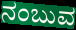
ನಂಬುವ